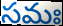
సమః